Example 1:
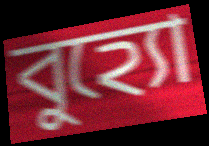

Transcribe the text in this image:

বুহ্যো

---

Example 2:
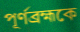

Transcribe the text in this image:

পূর্ণব্রহ্মকে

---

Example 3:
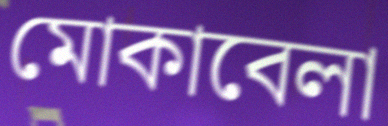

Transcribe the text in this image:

মোকাবেলা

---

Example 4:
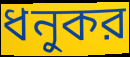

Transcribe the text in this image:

ধনুকর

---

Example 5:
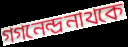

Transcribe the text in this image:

গগনেন্দ্রনাথকে